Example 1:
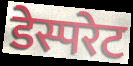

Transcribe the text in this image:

डेस्परेट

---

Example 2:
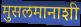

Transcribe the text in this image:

मुसलमानाशी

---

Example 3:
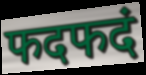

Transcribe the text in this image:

फदफदं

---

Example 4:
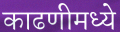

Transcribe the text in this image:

काढणीमध्ये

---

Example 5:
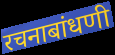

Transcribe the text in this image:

रचनाबांधणी